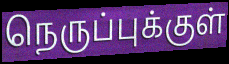
நெருப்புக்குள்